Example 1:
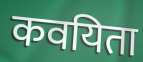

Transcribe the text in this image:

कवयिता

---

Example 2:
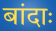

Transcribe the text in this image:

बांदाः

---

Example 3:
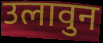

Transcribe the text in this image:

उलावुन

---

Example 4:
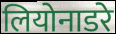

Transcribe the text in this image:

लियोनाडरे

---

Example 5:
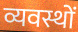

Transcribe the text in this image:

व्यवस्थों